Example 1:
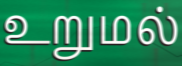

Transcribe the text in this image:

உறுமல்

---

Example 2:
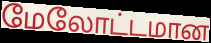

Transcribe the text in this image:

மேலோட்டமான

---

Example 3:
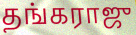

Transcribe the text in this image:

தங்கராஜு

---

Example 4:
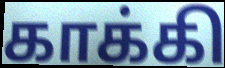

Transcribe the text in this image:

காக்கி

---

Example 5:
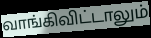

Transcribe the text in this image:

வாங்கிவிட்டாலும்